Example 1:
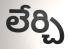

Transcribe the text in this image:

లేర్చి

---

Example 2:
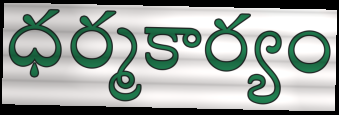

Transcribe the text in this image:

ధర్మకార్యం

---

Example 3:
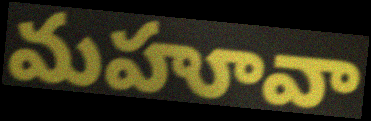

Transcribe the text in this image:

మహూవా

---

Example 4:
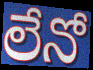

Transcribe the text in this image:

లేనో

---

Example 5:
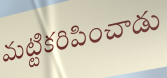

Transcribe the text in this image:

మట్టికరిపించాడు